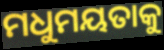
ମଧୁମୟତାକୁ